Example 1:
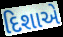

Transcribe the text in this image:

દિશાએ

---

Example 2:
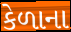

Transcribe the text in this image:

કેળાના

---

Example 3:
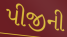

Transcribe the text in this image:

પીજીની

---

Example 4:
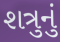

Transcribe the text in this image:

શત્રુનું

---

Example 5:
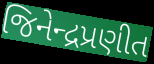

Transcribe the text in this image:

જિનેન્દ્રપ્રણીત